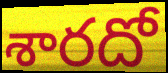
శారదో